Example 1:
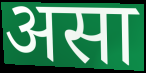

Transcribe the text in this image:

असा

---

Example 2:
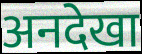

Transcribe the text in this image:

अनदेखा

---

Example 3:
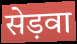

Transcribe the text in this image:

सेड़वा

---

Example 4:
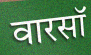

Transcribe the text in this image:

वारसॉ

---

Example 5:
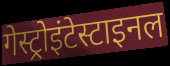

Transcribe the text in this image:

गेस्ट्रोइंटेस्टाइनल